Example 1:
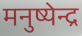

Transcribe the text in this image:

मनुष्येन्द्र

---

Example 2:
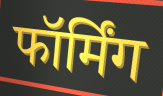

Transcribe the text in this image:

फॉर्मिंग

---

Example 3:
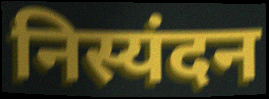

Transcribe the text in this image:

निस्यंदन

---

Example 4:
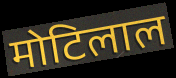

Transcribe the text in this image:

मोटिलाल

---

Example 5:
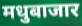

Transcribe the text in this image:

मधुबाजार